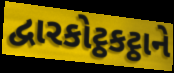
દ્વારકોટ્ઠકટ્ઠાને